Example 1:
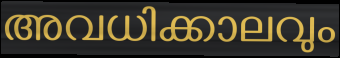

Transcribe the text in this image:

അവധിക്കാലവും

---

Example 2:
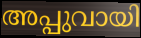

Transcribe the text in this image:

അപ്പുവായി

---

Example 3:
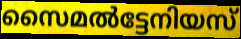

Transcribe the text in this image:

സൈമൽട്ടേനിയസ്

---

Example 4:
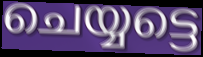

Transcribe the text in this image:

ചെയ്യട്ടെ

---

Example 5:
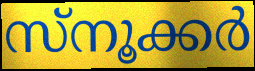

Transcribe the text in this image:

സ്നൂക്കർ